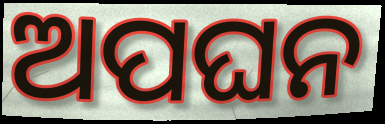
ଅପଘନ